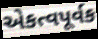
એકત્વપૂર્વક